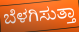
ಬೆಳಗಿಸುತ್ತಾ